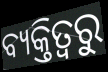
ବ୍ୟକ୍ତିତ୍ୱରୁ